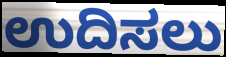
ಉದಿಸಲು